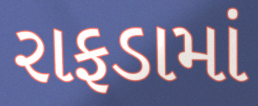
રાફડામાં